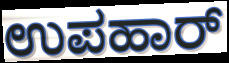
ಉಪಹಾರ್